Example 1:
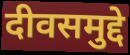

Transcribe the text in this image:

दीवसमुद्दे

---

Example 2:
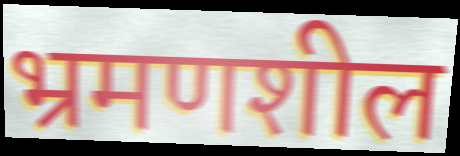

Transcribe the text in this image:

भ्रमणशील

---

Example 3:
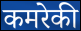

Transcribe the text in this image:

कमरेकी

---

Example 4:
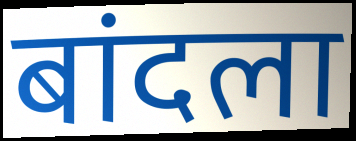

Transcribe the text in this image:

बांदला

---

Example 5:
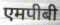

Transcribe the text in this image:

एमपीबी